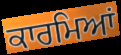
ਕਾਰਮਿਆਂ